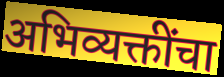
अभिव्यक्तींचा